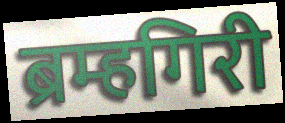
ब्रम्हगिरी